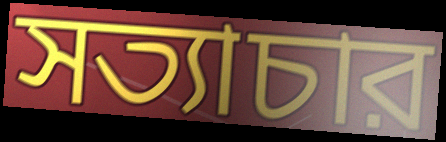
সত্যাচার